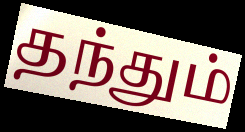
தந்தும்